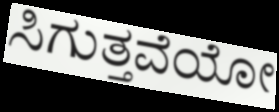
ಸಿಗುತ್ತವೆಯೋ